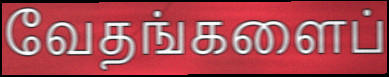
வேதங்களைப்